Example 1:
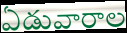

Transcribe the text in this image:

ఏడువారాల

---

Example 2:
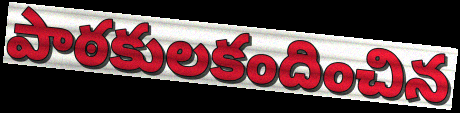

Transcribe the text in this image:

పాఠకులకందించిన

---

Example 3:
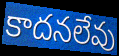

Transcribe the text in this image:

కాదనలేవు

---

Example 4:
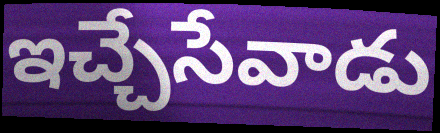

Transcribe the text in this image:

ఇచ్చేసేవాడు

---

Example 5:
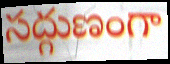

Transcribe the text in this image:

సద్గుణంగా